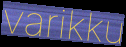
varikku